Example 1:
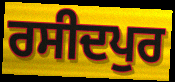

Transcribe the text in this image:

ਰਸੀਦਪੁਰ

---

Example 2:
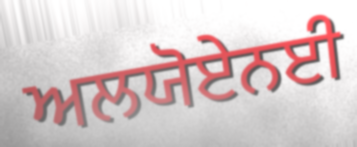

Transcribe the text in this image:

ਅਲਯੋਏਨਈ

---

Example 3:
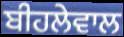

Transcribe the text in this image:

ਬੀਹਲੇਵਾਲ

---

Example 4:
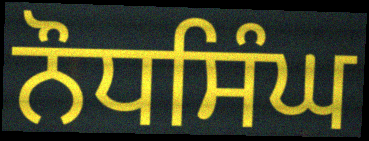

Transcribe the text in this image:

ਨੌਧਸਿੰਘ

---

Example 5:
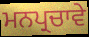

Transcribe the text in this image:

ਮਨਪ੍ਰਚਾਵੇ